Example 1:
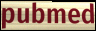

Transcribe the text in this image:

pubmed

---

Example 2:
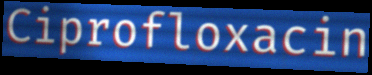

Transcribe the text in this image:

Ciprofloxacin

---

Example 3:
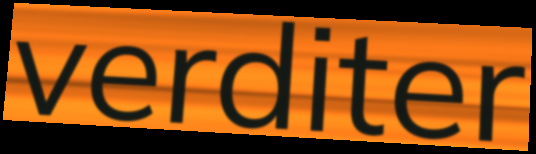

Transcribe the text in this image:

verditer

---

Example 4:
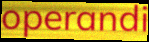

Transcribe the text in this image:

operandi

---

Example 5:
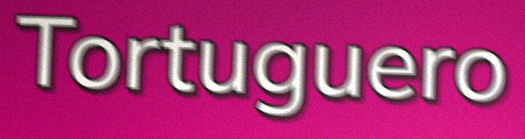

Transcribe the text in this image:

Tortuguero